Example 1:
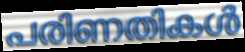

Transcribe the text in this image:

പരിണതികൾ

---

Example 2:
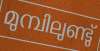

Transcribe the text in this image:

മുമ്പിലുണ്ടു്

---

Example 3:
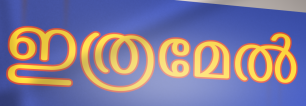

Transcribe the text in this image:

ഇത്രമേൽ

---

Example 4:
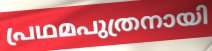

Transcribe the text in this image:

പ്രഥമപുത്രനായി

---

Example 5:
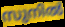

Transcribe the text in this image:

സുനിൽ